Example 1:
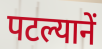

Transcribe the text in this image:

पटल्यानें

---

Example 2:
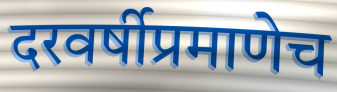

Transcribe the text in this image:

दरवर्षीप्रमाणेच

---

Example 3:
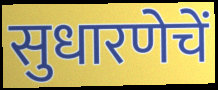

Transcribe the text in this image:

सुधारणेचें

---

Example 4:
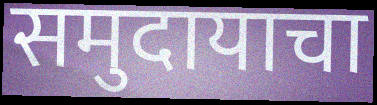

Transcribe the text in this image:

समुदायाचा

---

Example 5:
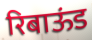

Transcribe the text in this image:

रिबाऊंड